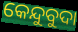
କେନ୍ଦୁବୁଦା